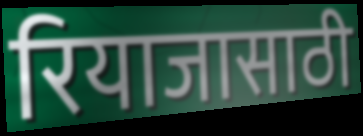
रियाजासाठी